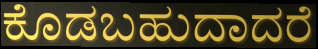
ಕೊಡಬಹುದಾದರೆ